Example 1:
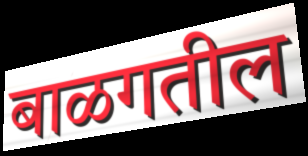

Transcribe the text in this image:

बाळगतील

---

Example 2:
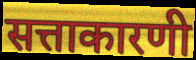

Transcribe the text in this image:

सत्ताकारणी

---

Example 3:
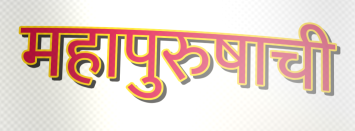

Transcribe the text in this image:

महापुरुषाची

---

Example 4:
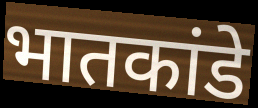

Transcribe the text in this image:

भातकांडे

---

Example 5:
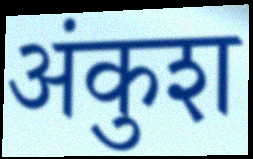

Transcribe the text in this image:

अंकुश